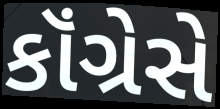
કૉંગ્રેસે